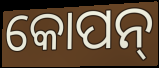
କୋପନ୍